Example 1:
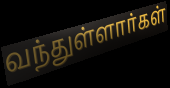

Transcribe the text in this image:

வந்துள்ளார்கள்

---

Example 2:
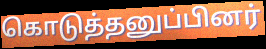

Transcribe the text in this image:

கொடுத்தனுப்பினர்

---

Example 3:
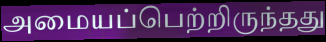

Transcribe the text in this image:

அமையப்பெற்றிருந்தது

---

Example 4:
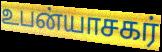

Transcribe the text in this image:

உபன்யாசகர்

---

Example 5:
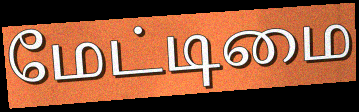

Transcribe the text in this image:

மேட்டிமை